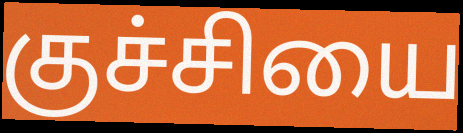
குச்சியை